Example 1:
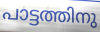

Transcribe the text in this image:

പാട്ടത്തിനു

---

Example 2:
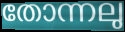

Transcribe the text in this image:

തോന്നലു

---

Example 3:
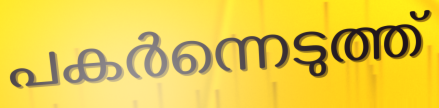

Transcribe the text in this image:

പകർന്നെടുത്ത്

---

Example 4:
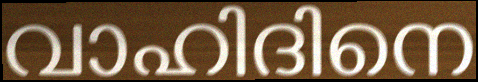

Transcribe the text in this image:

വാഹിദിനെ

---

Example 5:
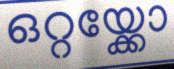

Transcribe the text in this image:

ഒറ്റയ്ക്കോ